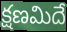
క్షణమిదే